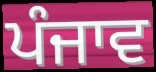
ਪੰਜਾਵ